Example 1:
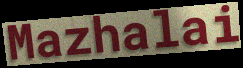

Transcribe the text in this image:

Mazhalai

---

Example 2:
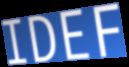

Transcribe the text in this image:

IDEF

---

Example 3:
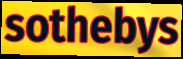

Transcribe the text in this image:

sothebys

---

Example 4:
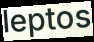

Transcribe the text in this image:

leptos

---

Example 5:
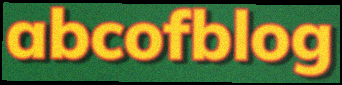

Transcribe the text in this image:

abcofblog